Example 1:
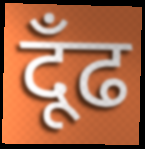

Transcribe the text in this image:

दूँढ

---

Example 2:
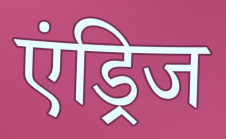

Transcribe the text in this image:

एंड्रिज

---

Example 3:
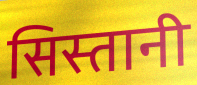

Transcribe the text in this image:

सिस्तानी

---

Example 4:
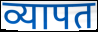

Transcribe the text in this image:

व्यापत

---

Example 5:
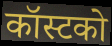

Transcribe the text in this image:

कॉस्टको